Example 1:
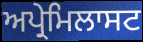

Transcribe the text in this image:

ਅਪ੍ਰੇਮਿਲਾਸਟ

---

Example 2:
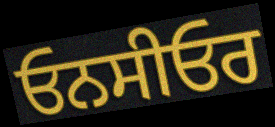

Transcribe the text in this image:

ਓਨਸੀਓਰ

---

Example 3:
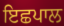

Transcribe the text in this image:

ਇਛਪਾਲ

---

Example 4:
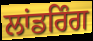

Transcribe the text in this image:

ਲਾਂਡਰਿੰਗ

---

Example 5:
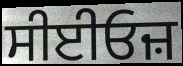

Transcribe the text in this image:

ਸੀਈਓਜ਼